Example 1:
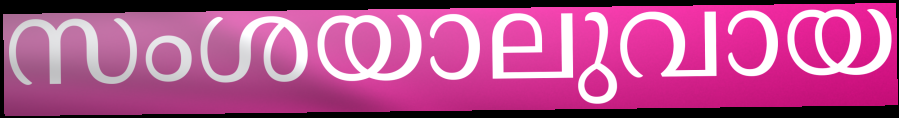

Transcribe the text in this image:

സംശയാലുവായ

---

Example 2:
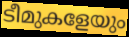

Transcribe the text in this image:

ടീമുകളേയും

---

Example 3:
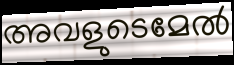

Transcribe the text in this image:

അവളുടെമേൽ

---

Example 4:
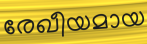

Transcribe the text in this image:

രേഖീയമായ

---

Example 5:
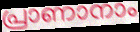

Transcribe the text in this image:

പ്രാണാനാം